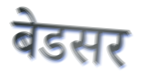
बेडसर